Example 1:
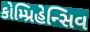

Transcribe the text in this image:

કોમ્પ્રિહેન્સિવ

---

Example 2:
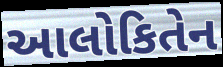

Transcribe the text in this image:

આલોકિતેન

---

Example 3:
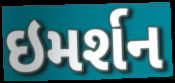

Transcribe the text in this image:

ઇમર્શન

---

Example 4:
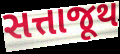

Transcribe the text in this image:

સત્તાજૂથ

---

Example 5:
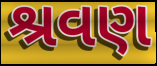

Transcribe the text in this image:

શ્રવણ